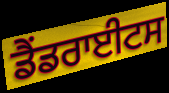
ਡੈਂਡਰਾਈਟਸ